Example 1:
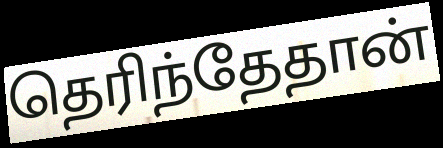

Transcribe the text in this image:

தெரிந்தேதான்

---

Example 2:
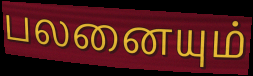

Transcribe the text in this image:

பலனையும்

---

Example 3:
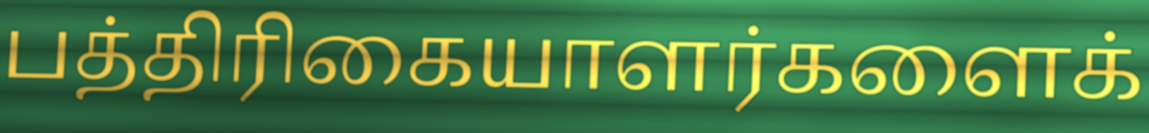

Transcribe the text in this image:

பத்திரிகையாளர்களைக்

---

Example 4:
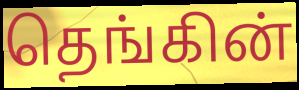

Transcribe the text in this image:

தெங்கின்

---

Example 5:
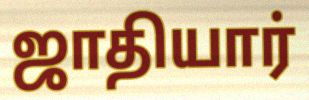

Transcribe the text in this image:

ஜாதியார்